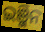
ଇଞ୍ଜିନ